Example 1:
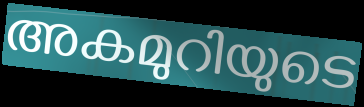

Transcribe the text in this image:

അകമുറിയുടെ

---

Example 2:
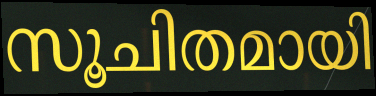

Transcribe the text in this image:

സൂചിതമായി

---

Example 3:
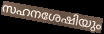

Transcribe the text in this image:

സഹനശേഷിയും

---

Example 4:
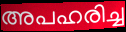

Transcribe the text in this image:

അപഹരിച്ച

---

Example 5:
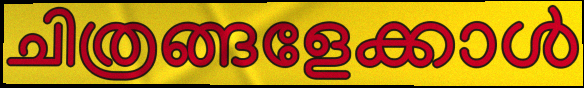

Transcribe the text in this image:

ചിത്രങ്ങളേക്കാൾ